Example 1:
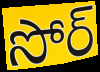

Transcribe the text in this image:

సోర్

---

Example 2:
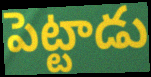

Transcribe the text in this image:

పెట్టాడు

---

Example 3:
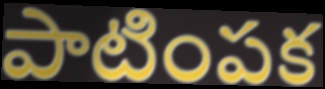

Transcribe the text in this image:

పాటింపక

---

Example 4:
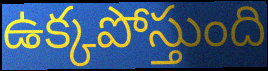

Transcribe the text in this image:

ఉక్కపోస్తుంది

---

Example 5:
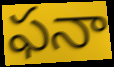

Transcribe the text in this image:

ఫనా